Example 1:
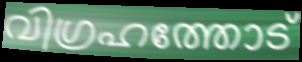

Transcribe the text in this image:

വിഗ്രഹത്തോട്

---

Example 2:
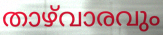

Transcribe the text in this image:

താഴ്‌വാരവും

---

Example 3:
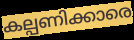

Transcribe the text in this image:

കല്പണിക്കാരെ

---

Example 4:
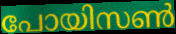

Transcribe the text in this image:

പോയിസൺ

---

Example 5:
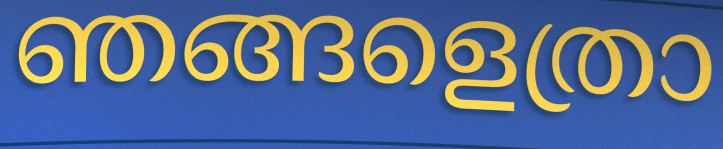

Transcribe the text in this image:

ഞങ്ങളെത്രാ